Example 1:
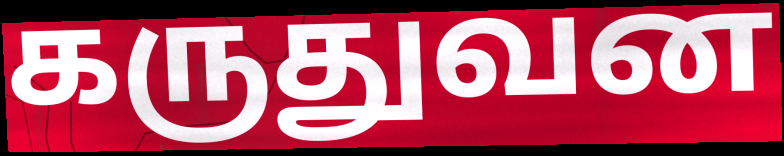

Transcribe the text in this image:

கருதுவன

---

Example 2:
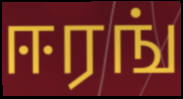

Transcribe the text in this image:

ஈரங்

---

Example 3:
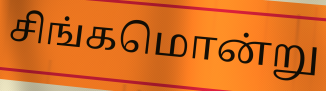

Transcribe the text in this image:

சிங்கமொன்று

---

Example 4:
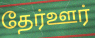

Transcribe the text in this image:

தேர்ஊர்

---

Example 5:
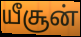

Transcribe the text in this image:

யீசூன்